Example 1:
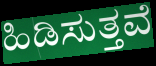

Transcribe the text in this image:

ಹಿಡಿಸುತ್ತವೆ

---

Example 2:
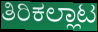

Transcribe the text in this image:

ತಿರಿಕಲ್ಲಾಟ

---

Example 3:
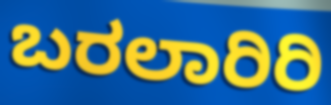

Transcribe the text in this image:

ಬರಲಾರಿರಿ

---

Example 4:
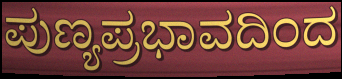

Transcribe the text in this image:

ಪುಣ್ಯಪ್ರಭಾವದಿಂದ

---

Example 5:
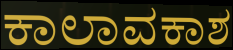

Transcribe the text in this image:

ಕಾಲಾವಕಾಶ